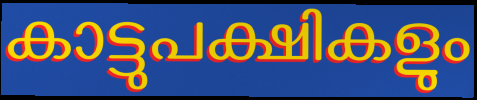
കാട്ടുപക്ഷികളും